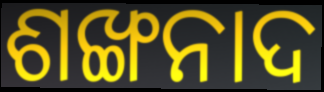
ଶଙ୍ଖନାଦ